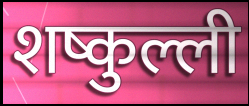
शष्कुल्ली